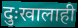
दुःखालाही